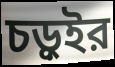
চড়ুইর